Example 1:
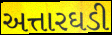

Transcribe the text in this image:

અત્તારઘડી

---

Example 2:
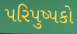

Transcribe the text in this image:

પરિપુષ્પકો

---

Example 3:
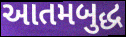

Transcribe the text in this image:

આતમબુદ્ધ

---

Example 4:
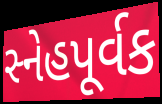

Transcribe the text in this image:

સ્નેહપૂર્વક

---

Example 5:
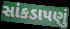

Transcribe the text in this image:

સાંકડાપણું